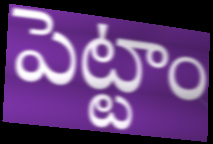
పెట్టాం